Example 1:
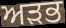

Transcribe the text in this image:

ਅੜਭ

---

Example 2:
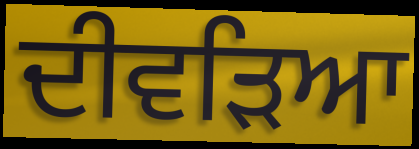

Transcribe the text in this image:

ਦੀਵੜਿਆ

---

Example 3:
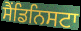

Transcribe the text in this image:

ਸੈਂਡਿਨਿਸਟਾ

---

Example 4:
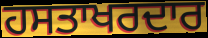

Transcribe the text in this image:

ਹਸਤਾਖਰਦਾਰ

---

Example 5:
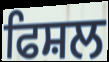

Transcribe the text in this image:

ਫਿਸ਼ਲ